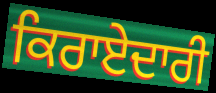
ਕਿਰਾਏਦਾਰੀ